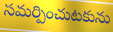
సమర్పించుటకును